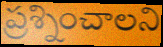
ప్రశ్నించాలని